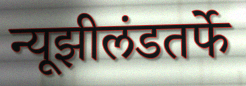
न्यूझीलंडतर्फे